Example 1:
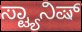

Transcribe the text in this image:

ಸ್ಟ್ಯಾನಿಷ್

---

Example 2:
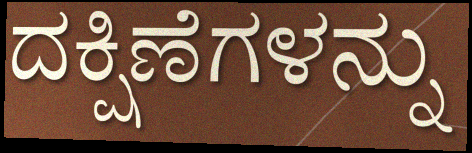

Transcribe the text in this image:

ದಕ್ಷಿಣೆಗಳನ್ನು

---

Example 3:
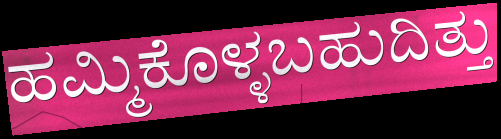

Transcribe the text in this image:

ಹಮ್ಮಿಕೊಳ್ಳಬಹುದಿತ್ತು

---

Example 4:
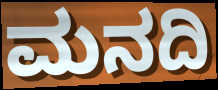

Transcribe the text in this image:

ಮನದಿ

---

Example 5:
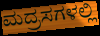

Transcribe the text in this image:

ಮದ್ರಸಗಳಲ್ಲಿ